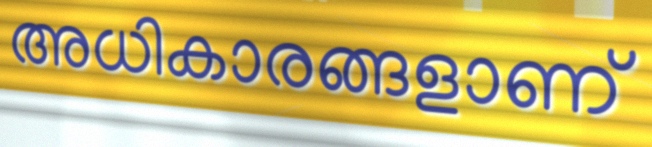
അധികാരങ്ങളാണ്